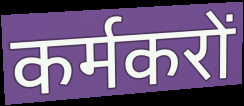
कर्मकरों